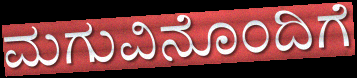
ಮಗುವಿನೊಂದಿಗೆ